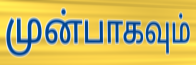
முன்பாகவும்